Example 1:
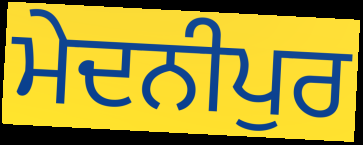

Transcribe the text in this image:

ਮੇਦਨੀਪੁਰ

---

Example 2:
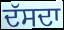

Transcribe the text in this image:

ਦੱਸਦਾ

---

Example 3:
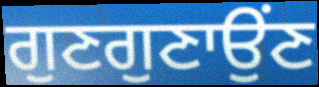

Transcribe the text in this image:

ਗੁਣਗੁਣਾਉਂਣ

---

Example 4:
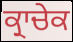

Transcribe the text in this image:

ਕ੍ਰਾਚੇਕ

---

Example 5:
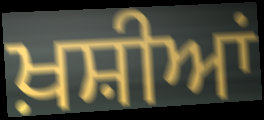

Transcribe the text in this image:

ਖ਼ਸ਼ੀਆਂ